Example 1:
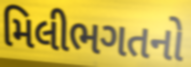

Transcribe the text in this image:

મિલીભગતનો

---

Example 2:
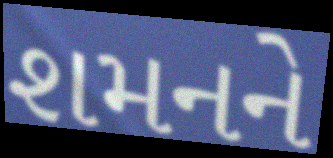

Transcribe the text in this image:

શમનને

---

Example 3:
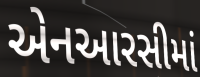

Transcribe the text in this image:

એનઆરસીમાં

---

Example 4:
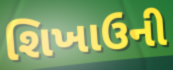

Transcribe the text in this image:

શિખાઉની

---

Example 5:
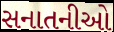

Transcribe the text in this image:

સનાતનીઓ